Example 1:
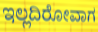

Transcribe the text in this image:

ಇಲ್ಲದಿರೋವಾಗ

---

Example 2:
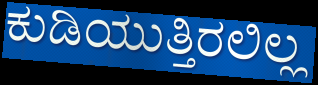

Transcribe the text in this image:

ಕುಡಿಯುತ್ತಿರಲಿಲ್ಲ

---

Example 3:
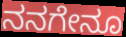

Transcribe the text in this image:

ನನಗೇನೂ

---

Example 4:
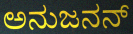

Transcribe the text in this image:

ಅನುಜನನ್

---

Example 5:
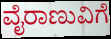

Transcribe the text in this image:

ವೈರಾಣುವಿಗೆ